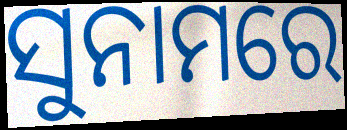
ସୁନାମରେ